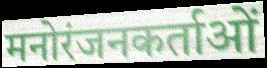
मनोरंजनकर्ताओं